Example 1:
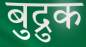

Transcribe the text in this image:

बुद्रुक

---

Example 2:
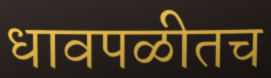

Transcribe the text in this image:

धावपळीतच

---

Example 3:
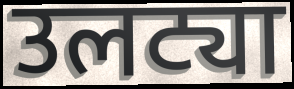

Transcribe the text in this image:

उलट्या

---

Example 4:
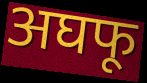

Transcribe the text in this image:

अघफू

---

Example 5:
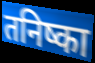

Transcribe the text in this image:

तनिष्का